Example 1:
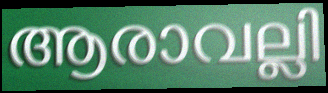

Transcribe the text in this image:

ആരാവല്ലി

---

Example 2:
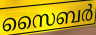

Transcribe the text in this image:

സൈബർ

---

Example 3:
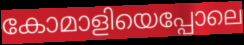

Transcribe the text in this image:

കോമാളിയെപ്പോലെ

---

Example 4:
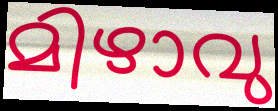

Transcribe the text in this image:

മിഴാവു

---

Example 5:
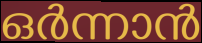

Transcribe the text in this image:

ഒർന്നാൻ